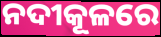
ନଦୀକୂଳରେ